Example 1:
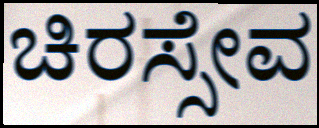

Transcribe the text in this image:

ಚಿರಸ್ಸೇವ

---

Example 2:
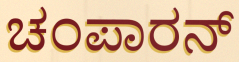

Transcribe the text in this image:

ಚಂಪಾರನ್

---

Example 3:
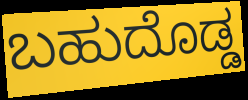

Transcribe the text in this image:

ಬಹುದೊಡ್ಡ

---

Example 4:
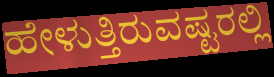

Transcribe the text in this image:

ಹೇಳುತ್ತಿರುವಷ್ಟರಲ್ಲಿ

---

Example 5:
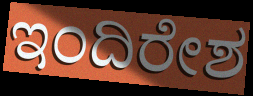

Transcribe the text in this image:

ಇಂದಿರೇಶ